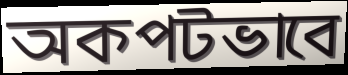
অকপটভাবে